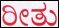
ರೀತು